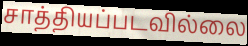
சாத்தியப்படவில்லை